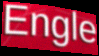
Engle